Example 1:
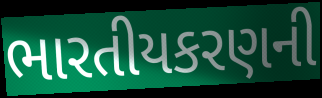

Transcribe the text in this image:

ભારતીયકરણની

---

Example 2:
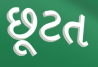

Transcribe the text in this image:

છૂટત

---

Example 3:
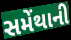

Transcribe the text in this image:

સમેંથાની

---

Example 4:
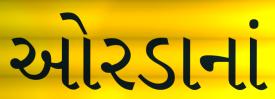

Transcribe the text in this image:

ઓરડાનાં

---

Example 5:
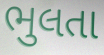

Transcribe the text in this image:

ભુલતા